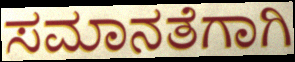
ಸಮಾನತೆಗಾಗಿ